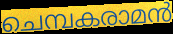
ചെമ്പകരാമൻ